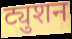
ट्युशन